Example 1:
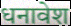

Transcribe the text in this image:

धनावेश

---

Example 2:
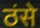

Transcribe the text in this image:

ठंसे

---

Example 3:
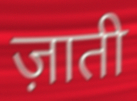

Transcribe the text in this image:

ज़ाती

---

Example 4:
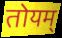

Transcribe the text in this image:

तोयम्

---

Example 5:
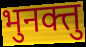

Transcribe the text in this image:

भुनक्तु